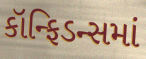
કૉન્ફિડન્સમાં